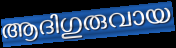
ആദിഗുരുവായ